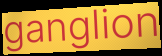
ganglion